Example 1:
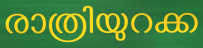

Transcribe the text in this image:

രാത്രിയുറക്ക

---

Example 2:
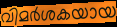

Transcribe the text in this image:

വിമർശകയായ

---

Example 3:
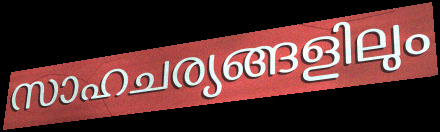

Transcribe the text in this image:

സാഹചര്യങ്ങളിലും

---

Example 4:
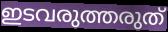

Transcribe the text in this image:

ഇടവരുത്തരുത്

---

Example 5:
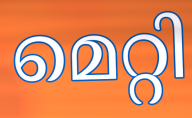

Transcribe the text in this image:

മെറ്റി